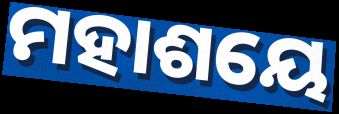
ମହାଶୟେ